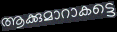
ആക്കുമാറാകട്ടെ